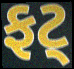
ફટ્